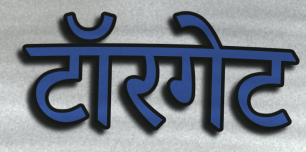
टॉरगेट